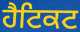
ਹੈਟਿਕਟ